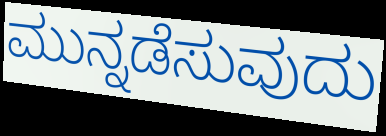
ಮುನ್ನಡೆಸುವುದು